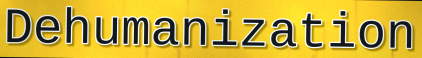
Dehumanization